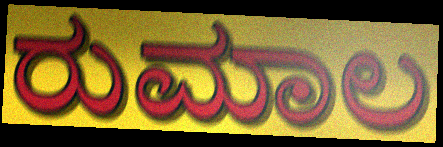
ರುಮಾಲ